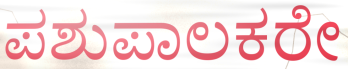
ಪಶುಪಾಲಕರೇ